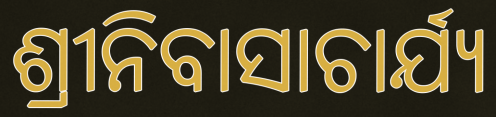
ଶ୍ରୀନିବାସାଚାର୍ଯ୍ୟ